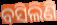
ବସିଲିଣି